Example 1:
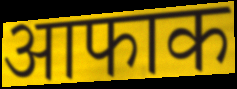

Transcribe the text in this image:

आफाक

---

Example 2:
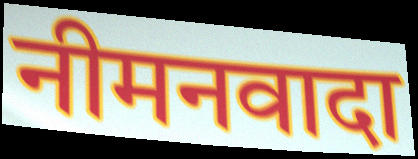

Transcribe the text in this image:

नीमनवादा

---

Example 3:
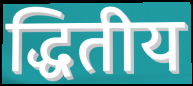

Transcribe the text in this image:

द्धितीय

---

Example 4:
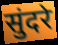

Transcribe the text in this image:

सुंदरे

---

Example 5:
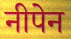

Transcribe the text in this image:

नीपेन